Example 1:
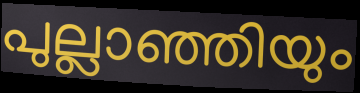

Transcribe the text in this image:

പുല്ലാഞ്ഞിയും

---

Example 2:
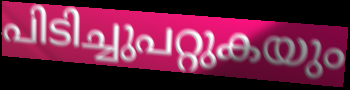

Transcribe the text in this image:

പിടിച്ചുപറ്റുകയും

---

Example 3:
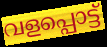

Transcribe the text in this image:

വളപ്പൊട്ട്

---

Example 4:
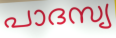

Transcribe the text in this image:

പാദസ്യ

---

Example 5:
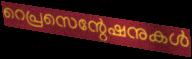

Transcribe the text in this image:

റെപ്രസെന്റേഷനുകൾ